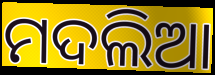
ମଦଲିଆ